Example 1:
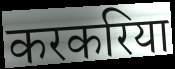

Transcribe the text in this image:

करकरिया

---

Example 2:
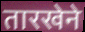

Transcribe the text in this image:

तारखेने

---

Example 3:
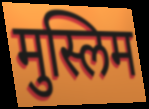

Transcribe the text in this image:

मुस्लिम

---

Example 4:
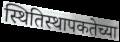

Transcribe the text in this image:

स्थितिस्थापकतेच्या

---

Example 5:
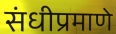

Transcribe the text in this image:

संधीप्रमाणे